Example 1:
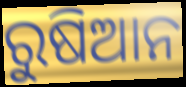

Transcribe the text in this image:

ରୁଷିଆନ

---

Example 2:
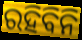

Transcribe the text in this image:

ରହିବିନି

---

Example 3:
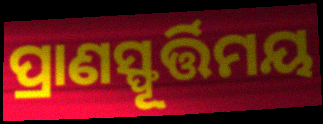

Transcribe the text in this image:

ପ୍ରାଣସ୍ଫୂର୍ତ୍ତିମୟ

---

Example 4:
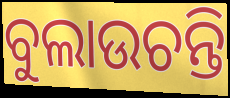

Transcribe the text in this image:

ବୁଲାଉଚନ୍ତି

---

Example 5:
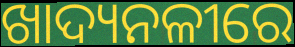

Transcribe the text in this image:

ଖାଦ୍ୟନଳୀରେ